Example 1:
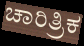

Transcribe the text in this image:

ಚಾರಿತ್ರಿಕ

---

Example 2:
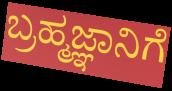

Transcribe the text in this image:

ಬ್ರಹ್ಮಜ್ಞಾನಿಗೆ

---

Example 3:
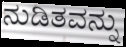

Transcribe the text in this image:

ನುಡಿತವನ್ನು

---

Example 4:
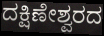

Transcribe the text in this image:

ದಕ್ಷಿಣೇಶ್ವರದ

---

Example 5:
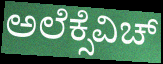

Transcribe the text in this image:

ಅಲೆಕ್ಸೆವಿಚ್